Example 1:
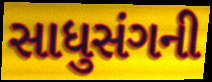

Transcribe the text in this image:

સાધુસંગની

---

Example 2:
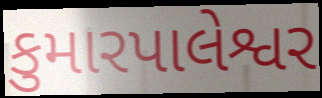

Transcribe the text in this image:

કુમારપાલેશ્વર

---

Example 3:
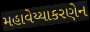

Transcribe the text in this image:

મહાવેય્યાકરણેન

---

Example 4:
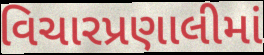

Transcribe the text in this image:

વિચારપ્રણાલીમાં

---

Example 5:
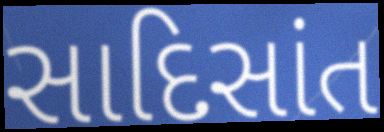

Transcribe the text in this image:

સાદિસાંત